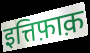
इत्तिफ़ाक़